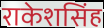
राकेशसिंह